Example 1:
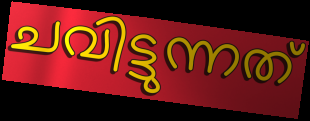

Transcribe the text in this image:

ചവിട്ടുന്നത്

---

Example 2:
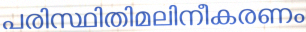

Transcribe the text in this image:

പരിസ്ഥിതിമലിനീകരണം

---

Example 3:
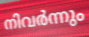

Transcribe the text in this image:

നിവർന്നും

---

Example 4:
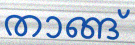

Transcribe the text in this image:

താങ്ങ്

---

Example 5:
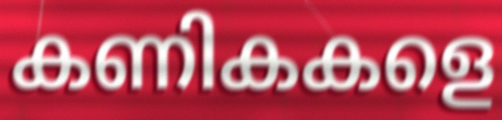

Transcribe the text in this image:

കണികകളെ